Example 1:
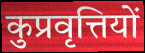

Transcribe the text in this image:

कुप्रवृत्तियों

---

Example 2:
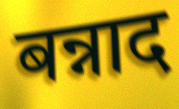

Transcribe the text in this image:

बन्नाद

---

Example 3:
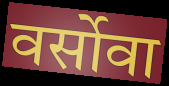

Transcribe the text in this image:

वर्सोवा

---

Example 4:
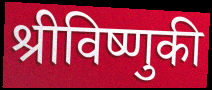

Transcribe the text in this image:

श्रीविष्णुकी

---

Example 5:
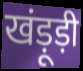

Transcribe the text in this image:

खंड़ूड़ी